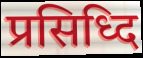
प्रसिध्दि